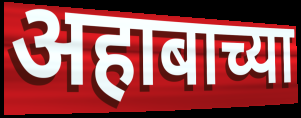
अहाबाच्या